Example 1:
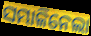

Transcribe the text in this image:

ସମ୍ଭାଳିନେଲା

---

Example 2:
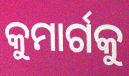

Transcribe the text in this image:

କୁମାର୍ଗକୁ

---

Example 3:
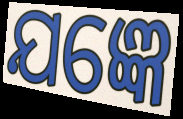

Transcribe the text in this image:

ଯଜ୍ଞେ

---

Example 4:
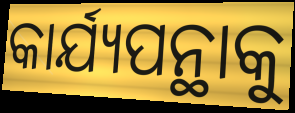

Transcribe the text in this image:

କାର୍ଯ୍ୟପନ୍ଥାକୁ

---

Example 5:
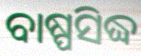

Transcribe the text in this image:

ବାଷ୍ପସିଦ୍ଧ